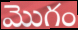
మొగం